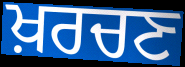
ਖ਼ਰਚਣ